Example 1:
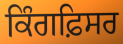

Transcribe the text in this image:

ਕਿੰਗਫ਼ਿਸਰ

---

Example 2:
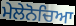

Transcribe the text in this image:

ਮੇਲੇਨੋਚਿਆ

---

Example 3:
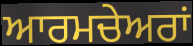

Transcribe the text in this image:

ਆਰਮਚੇਅਰਾਂ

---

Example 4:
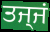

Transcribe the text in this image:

ਤਜ੍ਜਂ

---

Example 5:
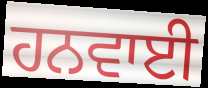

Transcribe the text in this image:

ਹਨਵਾਈ